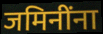
जमिनींना